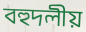
বহুদলীয়